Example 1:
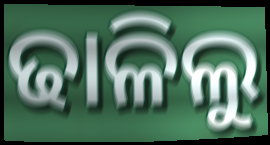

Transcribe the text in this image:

ଢାଳିଲୁ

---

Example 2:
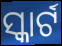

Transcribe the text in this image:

ସ୍କାର୍ଟ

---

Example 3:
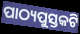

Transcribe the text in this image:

ପାଠ୍ୟପୁସ୍ତକଟି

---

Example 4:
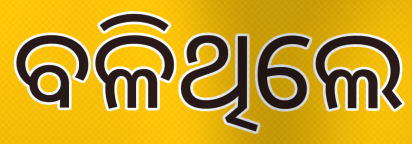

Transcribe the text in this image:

ବଳିଥିଲେ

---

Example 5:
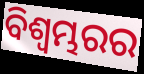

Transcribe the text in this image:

ବିଶ୍ଵମ୍ଭରର